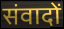
संवादों